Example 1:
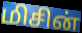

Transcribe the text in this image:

மிசின்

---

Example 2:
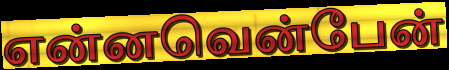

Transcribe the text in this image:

என்னவென்பேன்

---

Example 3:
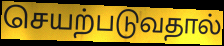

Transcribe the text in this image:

செயற்படுவதால்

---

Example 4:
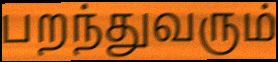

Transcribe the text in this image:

பறந்துவரும்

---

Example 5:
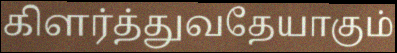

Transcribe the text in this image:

கிளர்த்துவதேயாகும்